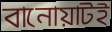
বানোয়াটই